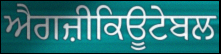
ਐਗਜ਼ੀਕਿਊਟੇਬਲ